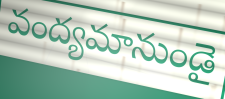
వంద్యమానుండై